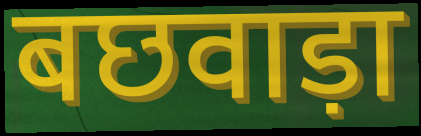
बछवाड़ा